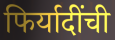
फिर्यादींची